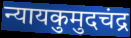
न्यायकुमुदचंद्र